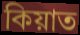
কিয়াত